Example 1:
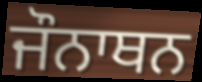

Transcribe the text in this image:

ਜੌਨਾਥਨ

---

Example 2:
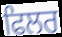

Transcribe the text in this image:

ਫਿਲਰ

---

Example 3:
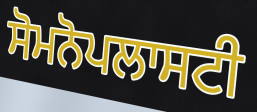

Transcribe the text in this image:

ਸੋਮਨੋਪਲਾਸਟੀ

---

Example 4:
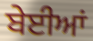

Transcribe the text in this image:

ਬੇਈਆਂ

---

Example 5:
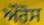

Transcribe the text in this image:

ਔਰੋਸ